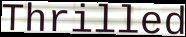
Thrilled